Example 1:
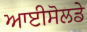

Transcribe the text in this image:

ਆਈਸੋਲਡੇ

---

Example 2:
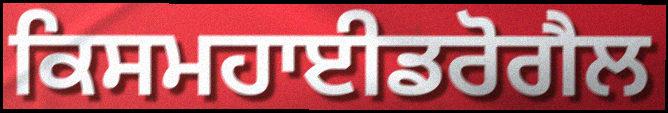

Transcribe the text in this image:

ਕਿਸਮਹਾਈਡਰੋਗੈਲ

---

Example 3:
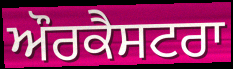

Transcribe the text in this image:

ਔਰਕੈਸਟਰਾ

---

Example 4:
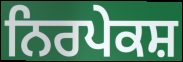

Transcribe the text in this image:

ਨਿਰਪੇਕਸ਼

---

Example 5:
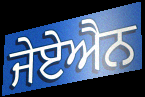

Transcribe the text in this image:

ਜੇਏਐਨ